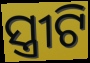
ସ୍ତ୍ରୀଟି